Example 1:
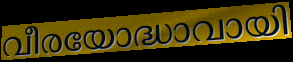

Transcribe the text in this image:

വീരയോദ്ധാവായി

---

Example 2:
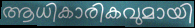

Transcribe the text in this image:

ആധികാരികവുമായി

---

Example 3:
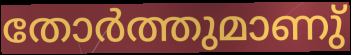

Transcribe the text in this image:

തോർത്തുമാണു്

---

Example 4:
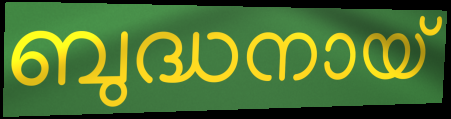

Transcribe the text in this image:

ബുദ്ധനായ്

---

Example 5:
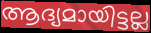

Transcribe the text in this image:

ആദ്യമായിട്ടല്ല